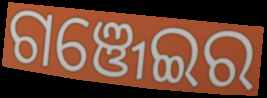
ଗଞ୍ଜେଇର